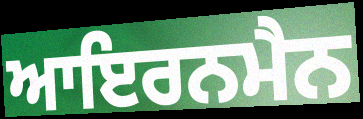
ਆਇਰਨਮੈਨ